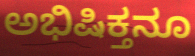
ಅಭಿಷಿಕ್ತನೂ